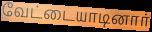
வேட்டையாடினார்